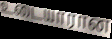
உடையாரான